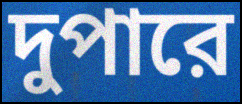
দুপারে